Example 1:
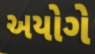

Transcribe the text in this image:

અયોગે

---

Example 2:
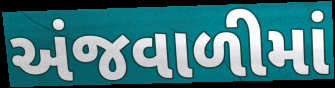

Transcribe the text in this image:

અંજવાળીમાં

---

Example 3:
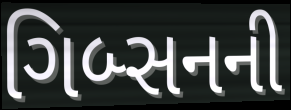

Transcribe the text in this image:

ગિબ્સનની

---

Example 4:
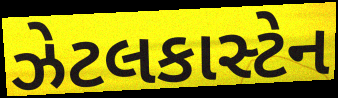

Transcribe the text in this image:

ઝેટલકાસ્ટેન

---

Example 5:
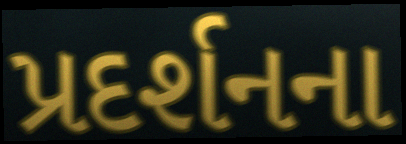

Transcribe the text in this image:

પ્રદર્શનના